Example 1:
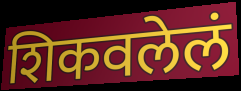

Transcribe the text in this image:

शिकवलेलं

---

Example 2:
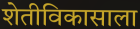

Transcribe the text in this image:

शेतीविकासाला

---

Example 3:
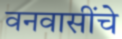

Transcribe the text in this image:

वनवासींचे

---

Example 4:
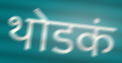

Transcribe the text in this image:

थोडकं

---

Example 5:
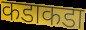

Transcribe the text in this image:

कडाकडा